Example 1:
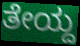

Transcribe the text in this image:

ತೇಯ್ದ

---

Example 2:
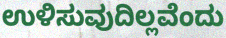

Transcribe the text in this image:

ಉಳಿಸುವುದಿಲ್ಲವೆಂದು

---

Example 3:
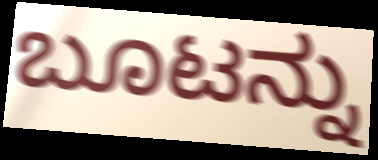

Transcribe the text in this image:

ಬೂಟನ್ನು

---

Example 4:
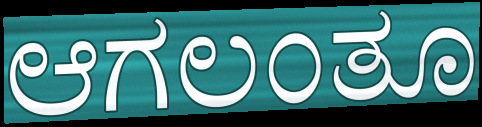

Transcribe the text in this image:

ಆಗಲಂತೂ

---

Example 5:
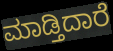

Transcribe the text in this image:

ಮಾಡ್ತಿದಾರೆ